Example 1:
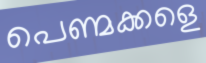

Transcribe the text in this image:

പെണ്മക്കളെ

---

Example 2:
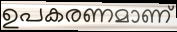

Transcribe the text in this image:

ഉപകരണമാണ്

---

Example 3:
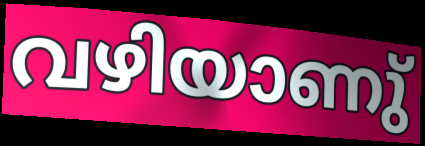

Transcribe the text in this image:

വഴിയാണു്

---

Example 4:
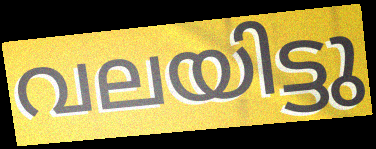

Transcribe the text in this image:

വലയിട്ടു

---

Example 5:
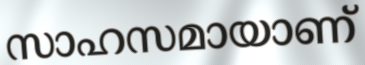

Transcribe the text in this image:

സാഹസമായാണ്